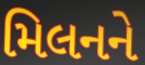
મિલનને